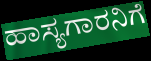
ಹಾಸ್ಯಗಾರನಿಗೆ